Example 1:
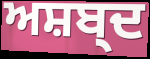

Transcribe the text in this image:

ਅਸ਼ਬ੍ਦ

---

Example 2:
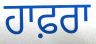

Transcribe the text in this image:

ਹਾਫ਼ਰਾ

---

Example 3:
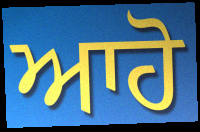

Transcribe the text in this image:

ਆਹੋ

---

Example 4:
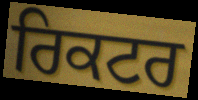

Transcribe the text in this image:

ਰਿਕਟਰ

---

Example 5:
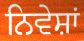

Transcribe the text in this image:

ਨਿਵੇਸ਼ਾਂ